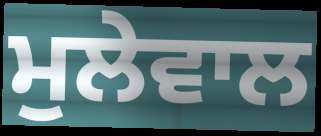
ਮੁਲੇਵਾਲ